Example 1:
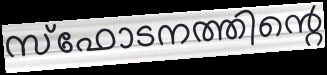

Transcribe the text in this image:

സ്ഫോടനത്തിന്റെ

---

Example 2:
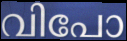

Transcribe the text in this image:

വിപോ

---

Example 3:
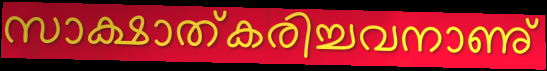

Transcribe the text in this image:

സാക്ഷാത്കരിച്ചവനാണു്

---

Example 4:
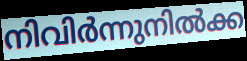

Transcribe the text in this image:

നിവിർന്നുനിൽക്ക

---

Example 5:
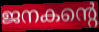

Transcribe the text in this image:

ജനകന്റെ